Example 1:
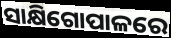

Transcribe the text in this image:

ସାକ୍ଷିଗୋପାଳରେ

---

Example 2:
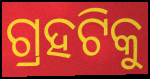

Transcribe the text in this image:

ଗ୍ରହଟିକୁ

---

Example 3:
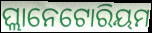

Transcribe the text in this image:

ପ୍ଲାନେଟୋରିୟମ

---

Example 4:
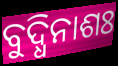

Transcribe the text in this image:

ବୁଦ୍ଧିନାଶଃ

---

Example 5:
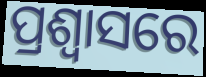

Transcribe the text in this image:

ପ୍ରଶ୍ଵାସରେ